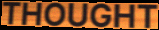
THOUGHT